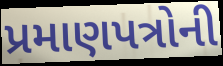
પ્રમાણપત્રોની